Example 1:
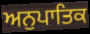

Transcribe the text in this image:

ਅਨੁਪਾਤਿਕ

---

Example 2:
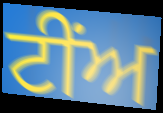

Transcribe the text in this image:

ਟੀਂਅ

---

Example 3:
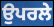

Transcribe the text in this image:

ਉਪਰਲੇ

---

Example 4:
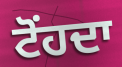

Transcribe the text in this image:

ਟੋਂਹਦਾ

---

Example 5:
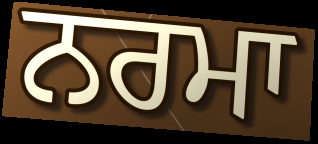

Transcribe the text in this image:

ਨਰਮਾ